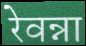
रेवन्ना